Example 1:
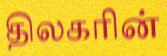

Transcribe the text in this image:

திலகரின்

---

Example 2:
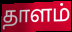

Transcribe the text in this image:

தாளம்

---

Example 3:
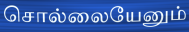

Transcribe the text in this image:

சொல்லையேனும்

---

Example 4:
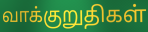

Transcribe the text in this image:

வாக்குறுதிகள்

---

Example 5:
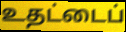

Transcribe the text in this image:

உதட்டைப்